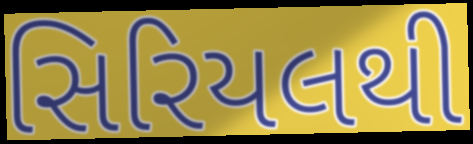
સિરિયલથી